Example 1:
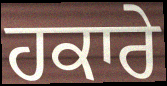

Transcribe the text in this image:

ਹਕਾਰੇ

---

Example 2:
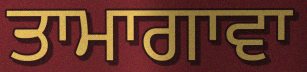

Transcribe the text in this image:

ਤਾਮਾਗਾਵਾ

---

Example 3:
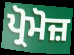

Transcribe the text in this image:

ਪ੍ਰੋਮੋਜ਼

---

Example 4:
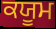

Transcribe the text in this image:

ਕਯੂਮ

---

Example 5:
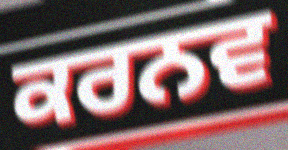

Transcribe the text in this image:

ਕਰਨਵ